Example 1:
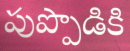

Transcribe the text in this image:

పుప్పొడికి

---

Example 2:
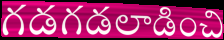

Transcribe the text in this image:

గడగడలాడించి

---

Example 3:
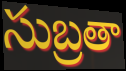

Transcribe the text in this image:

సుబ్రతా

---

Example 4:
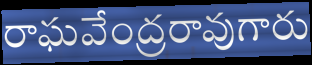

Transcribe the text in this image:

రాఘవేంద్రరావుగారు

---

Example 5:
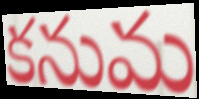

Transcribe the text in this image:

కనుమ